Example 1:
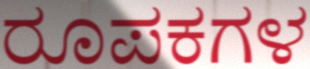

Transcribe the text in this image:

ರೂಪಕಗಳ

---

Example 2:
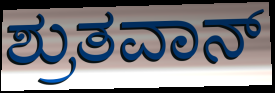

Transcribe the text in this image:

ಶ್ರುತವಾನ್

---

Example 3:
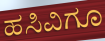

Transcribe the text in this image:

ಹಸಿವಿಗೂ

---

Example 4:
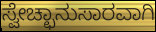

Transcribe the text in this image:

ಸ್ವೇಚ್ಛಾನುಸಾರವಾಗಿ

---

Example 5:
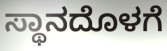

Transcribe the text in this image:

ಸ್ಥಾನದೊಳಗೆ